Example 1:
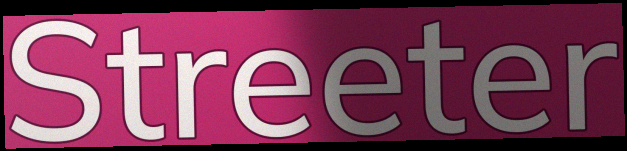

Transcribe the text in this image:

Streeter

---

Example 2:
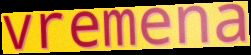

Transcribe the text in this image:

vremena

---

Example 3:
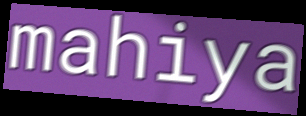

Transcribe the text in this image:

mahiya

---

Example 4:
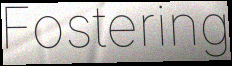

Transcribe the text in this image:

Fostering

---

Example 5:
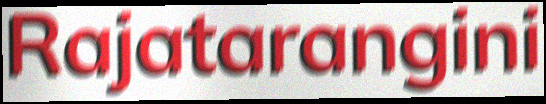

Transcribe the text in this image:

Rajatarangini